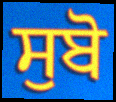
ਸੁਬੋ